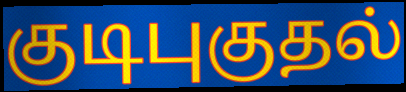
குடிபுகுதல்